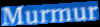
Murmur